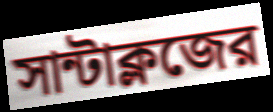
সান্টাক্লজের